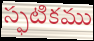
స్ఫటికము